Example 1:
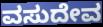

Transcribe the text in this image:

ವಸುದೇವ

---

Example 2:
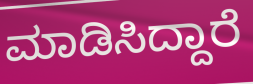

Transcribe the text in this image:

ಮಾಡಿಸಿದ್ದಾರೆ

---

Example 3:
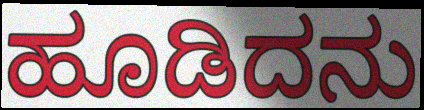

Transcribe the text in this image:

ಹೂಡಿದನು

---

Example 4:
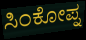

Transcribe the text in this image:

ಸಿಂಕೋಪ್ನ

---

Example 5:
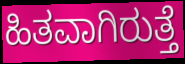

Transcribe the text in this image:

ಹಿತವಾಗಿರುತ್ತೆ